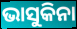
ଭାସୁକିନା